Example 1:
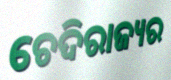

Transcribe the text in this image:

ଚେଦିରାଜ୍ୟର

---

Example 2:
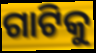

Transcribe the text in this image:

ଗାଟିକୁ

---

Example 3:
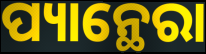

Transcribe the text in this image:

ପ୍ୟାନ୍ଥେରା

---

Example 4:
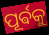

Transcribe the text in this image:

ପୂର୍ଵକୁ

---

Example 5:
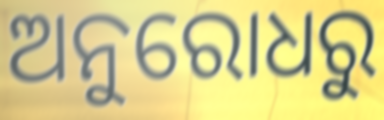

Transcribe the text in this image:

ଅନୁରୋଧରୁ